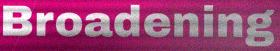
Broadening